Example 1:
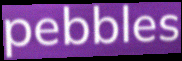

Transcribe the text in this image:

pebbles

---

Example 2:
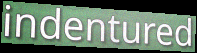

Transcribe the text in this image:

indentured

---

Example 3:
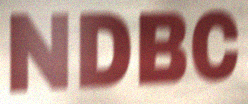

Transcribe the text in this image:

NDBC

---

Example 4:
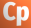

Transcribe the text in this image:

Cp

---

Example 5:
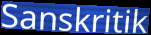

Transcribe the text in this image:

Sanskritik